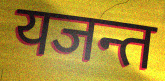
यजन्त